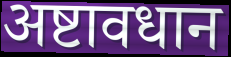
अष्टावधान